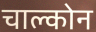
चाल्कोन